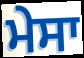
ਮੇਸਾ